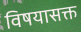
विषयासक्त